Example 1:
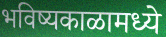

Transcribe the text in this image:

भविष्यकाळामध्ये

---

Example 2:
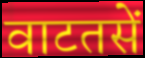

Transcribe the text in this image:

वाटतसें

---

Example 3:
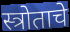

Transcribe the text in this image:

स्त्रोताचे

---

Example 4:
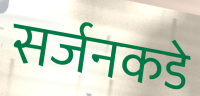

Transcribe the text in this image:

सर्जनकडे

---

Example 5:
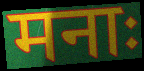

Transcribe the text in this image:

मनाः